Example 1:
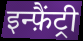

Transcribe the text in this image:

इन्फ़ैंट्री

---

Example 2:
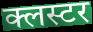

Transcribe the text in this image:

क्लस्टर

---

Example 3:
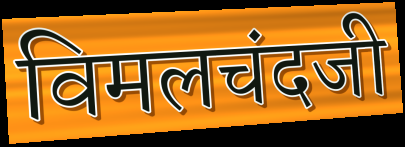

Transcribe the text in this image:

विमलचंदजी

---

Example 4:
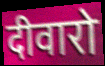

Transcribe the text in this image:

दीवारो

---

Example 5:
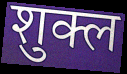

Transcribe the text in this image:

शुक्ल